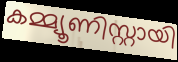
കമ്മ്യൂണിസ്റ്റായി